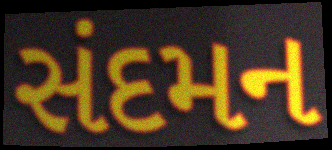
સંદમન